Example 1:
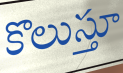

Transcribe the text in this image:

కొలుస్తూ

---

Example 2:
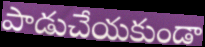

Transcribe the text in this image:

పాడుచేయకుండా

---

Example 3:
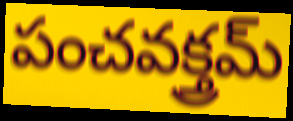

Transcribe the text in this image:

పంచవక్త్రమ్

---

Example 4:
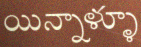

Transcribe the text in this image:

యిన్నాళ్ళూ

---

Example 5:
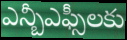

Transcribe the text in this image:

ఎన్బీఎఫ్సీలకు